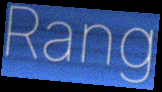
Rang